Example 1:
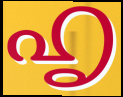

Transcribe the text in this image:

ഹൃ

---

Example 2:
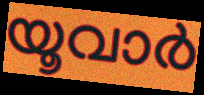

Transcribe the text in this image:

യൂവാർ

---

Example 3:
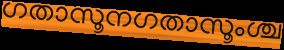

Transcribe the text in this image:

ഗതാസൂനഗതാസൂംശ്ച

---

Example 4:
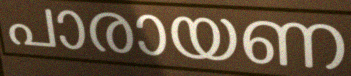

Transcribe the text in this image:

പാരായണ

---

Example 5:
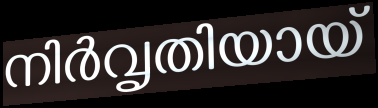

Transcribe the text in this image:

നിർവൃതിയായ്